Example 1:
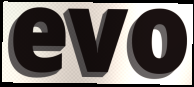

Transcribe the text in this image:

evo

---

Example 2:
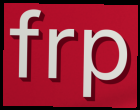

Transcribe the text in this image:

frp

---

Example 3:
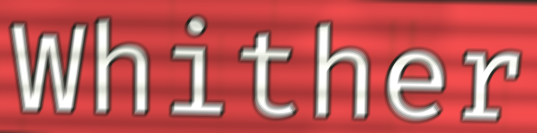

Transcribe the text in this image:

Whither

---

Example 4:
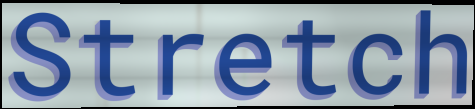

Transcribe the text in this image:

Stretch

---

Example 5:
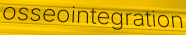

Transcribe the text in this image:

osseointegration